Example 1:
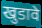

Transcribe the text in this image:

खुडावे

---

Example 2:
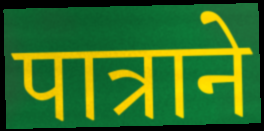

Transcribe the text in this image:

पात्राने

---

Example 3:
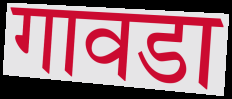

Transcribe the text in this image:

गावडा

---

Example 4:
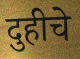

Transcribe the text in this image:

दुहीचे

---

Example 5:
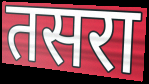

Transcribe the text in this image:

तसरा